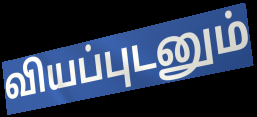
வியப்புடனும்